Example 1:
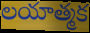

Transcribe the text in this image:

లయాత్మక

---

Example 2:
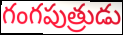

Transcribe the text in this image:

గంగపుత్రుడు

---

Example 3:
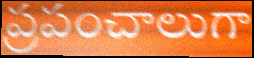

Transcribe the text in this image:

ప్రపంచాలుగా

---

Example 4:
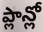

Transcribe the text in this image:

ప్లాన్లో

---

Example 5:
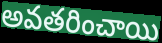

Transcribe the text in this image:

అవతరించాయి